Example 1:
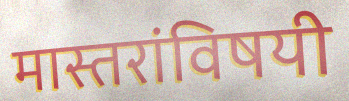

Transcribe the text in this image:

मास्तरांविषयी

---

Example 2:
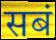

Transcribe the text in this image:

सबं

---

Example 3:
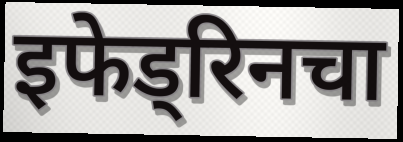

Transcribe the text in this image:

इफेड्रिनचा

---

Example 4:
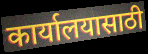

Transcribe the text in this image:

कार्यालयासाठी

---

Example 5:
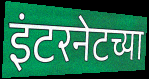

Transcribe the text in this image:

इंटरनेटच्या